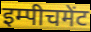
इम्पीचमेंट